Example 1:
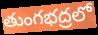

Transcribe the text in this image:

తుంగభద్రలో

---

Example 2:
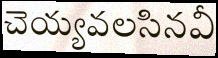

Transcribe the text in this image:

చెయ్యవలసినవీ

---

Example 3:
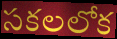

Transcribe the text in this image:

సకలలోక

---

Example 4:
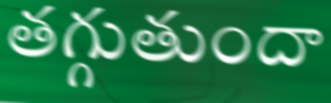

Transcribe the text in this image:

తగ్గుతుందా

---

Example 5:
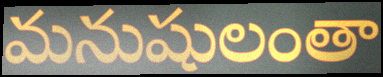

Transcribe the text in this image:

మనుషులంతా